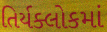
તિર્યક્લોકમાં